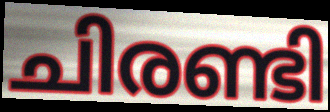
ചിരണ്ടി